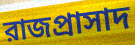
রাজপ্রাসাদ